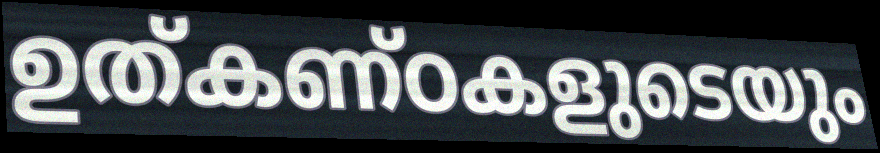
ഉത്കണ്ഠകളുടെയും